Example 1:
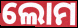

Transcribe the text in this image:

ଲୋମ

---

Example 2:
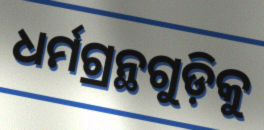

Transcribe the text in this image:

ଧର୍ମଗ୍ରନ୍ଥଗୁଡ଼ିକୁ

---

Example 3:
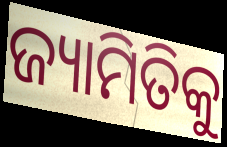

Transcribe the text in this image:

ଜ୍ୟାମିତିକୁ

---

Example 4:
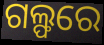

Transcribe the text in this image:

ଗଲ୍ଫରେ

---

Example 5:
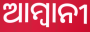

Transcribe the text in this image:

ଆମ୍ବାନୀ